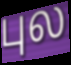
புல